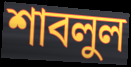
শাবলুল